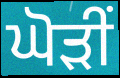
ਘੋੜੀਂ